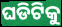
ଘଡିଟିକୁ